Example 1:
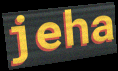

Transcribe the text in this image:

jeha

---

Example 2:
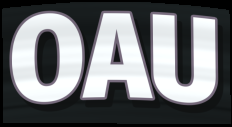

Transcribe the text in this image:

OAU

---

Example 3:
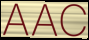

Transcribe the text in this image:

AAC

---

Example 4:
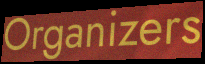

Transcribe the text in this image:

Organizers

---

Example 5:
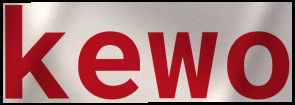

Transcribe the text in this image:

kewo